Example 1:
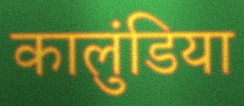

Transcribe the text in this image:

कालुंडिया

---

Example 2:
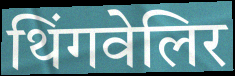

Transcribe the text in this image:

थिंगवेलिर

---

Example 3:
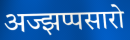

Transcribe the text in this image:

अज्झप्पसारो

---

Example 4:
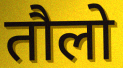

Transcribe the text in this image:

तौलो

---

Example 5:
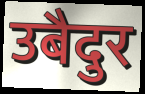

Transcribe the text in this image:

उबैदुर